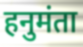
हनुमंता